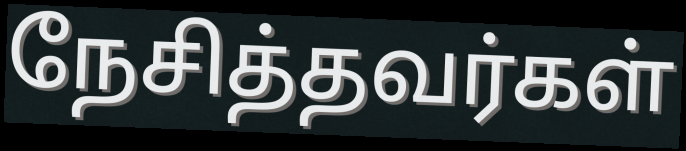
நேசித்தவர்கள்